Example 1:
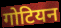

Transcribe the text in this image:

गोटियन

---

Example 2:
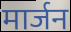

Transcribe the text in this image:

मार्जन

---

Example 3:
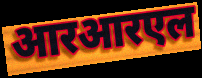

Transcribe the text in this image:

आरआरएल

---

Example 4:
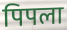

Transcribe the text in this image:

पिपला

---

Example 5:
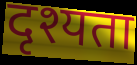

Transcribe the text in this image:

दृश्यता